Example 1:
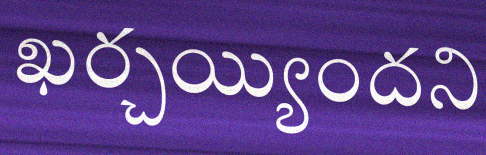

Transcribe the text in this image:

ఖర్చయ్యిందని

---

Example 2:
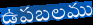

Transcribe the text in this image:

ఉపబలము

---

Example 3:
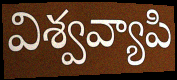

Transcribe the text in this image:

విశ్వవ్యాపి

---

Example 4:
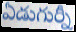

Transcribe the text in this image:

ఏడుగుర్నీ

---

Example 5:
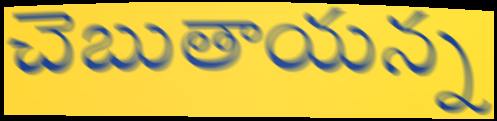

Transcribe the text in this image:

చెబుతాయన్న